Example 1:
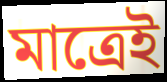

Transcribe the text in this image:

মাত্রেই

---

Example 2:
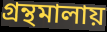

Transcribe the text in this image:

গ্রন্থমালায়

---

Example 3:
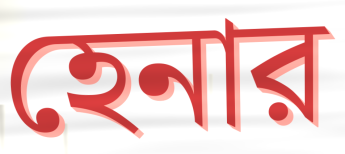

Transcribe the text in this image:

হেনার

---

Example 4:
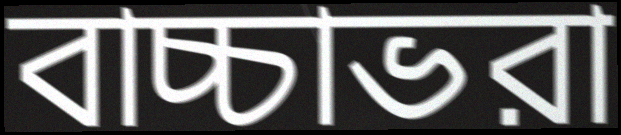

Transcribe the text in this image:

বাচ্চাভরা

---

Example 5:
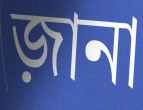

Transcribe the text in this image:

জ়ানা